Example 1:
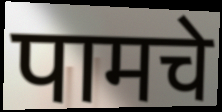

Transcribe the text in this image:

पामचे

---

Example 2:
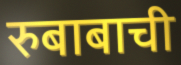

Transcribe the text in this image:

रुबाबाची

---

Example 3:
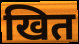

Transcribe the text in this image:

खित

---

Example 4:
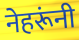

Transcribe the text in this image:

नेहरूंनी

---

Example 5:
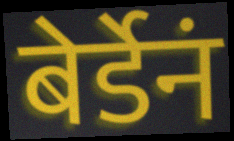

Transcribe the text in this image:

बेर्डेनं